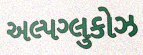
અલ્પગ્લુકોઝ